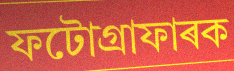
ফটোগ্ৰাফাৰক